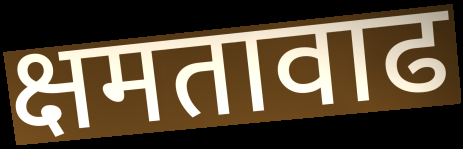
क्षमतावाढ